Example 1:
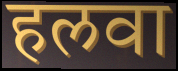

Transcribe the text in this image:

हलवा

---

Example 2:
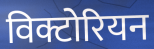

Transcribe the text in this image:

विक्टोरियन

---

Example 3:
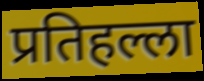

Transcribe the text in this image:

प्रतिहल्ला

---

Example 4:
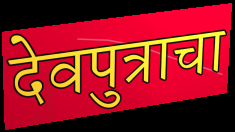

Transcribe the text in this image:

देवपुत्राचा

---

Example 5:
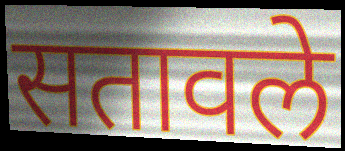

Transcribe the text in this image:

सतावले